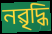
নৱৃদ্ধি